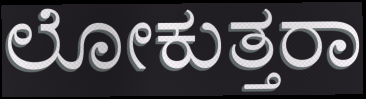
ಲೋಕುತ್ತರಾ